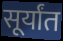
सूर्यांत